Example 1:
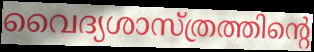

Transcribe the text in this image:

വൈദ്യശാസ്ത്രത്തിന്റെ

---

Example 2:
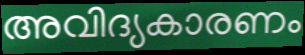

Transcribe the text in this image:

അവിദ്യകാരണം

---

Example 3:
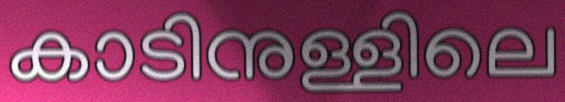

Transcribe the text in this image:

കാടിനുള്ളിലെ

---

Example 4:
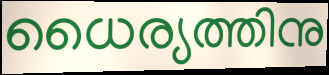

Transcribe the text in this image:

ധൈര്യത്തിനു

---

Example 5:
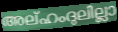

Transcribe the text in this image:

അല്ഹംദുലില്ലാ